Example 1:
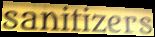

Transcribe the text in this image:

sanitizers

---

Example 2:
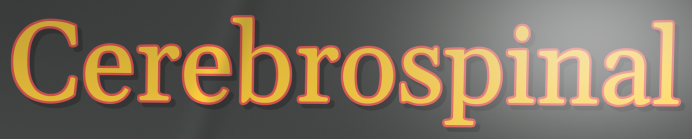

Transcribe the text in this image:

Cerebrospinal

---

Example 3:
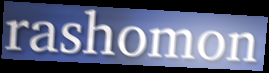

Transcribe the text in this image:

rashomon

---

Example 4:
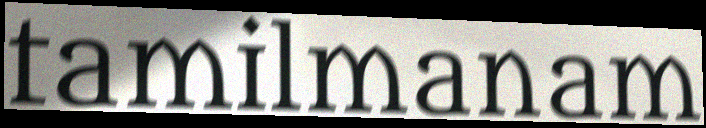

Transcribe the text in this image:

tamilmanam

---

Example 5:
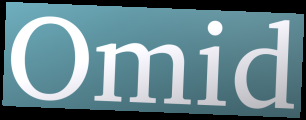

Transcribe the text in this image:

Omid